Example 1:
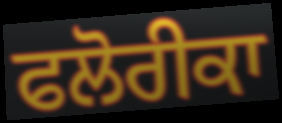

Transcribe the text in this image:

ਫਲੋਰੀਕਾ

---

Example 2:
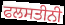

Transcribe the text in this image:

ਫਲਸਤੀਨੀ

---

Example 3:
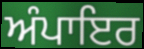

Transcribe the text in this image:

ਅੰਪਾਇਰ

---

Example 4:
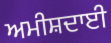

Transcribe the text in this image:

ਅਮੀਸ਼ਦਾਈ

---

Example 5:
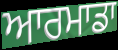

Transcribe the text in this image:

ਆਰਮਾਡਾ